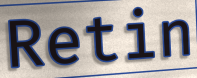
Retin